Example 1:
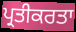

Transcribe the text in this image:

ਪ੍ਰਤੀਕਰਤਾ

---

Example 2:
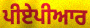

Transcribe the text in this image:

ਪੀਏਪੀਆਰ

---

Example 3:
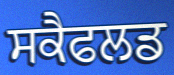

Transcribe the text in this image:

ਸਕੈਫਲਡ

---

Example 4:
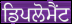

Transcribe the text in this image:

ਡਿਪਲੋਮੈਂਟ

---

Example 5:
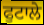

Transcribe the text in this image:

ਫੁਟਾਲੇ